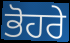
ਭੋਹਰੇ